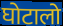
घोटालो